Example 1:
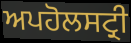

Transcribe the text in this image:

ਅਪਹੋਲਸਟ੍ਰੀ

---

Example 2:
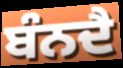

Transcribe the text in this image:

ਬੰਨਦੈ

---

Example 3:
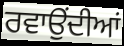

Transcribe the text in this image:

ਰਵਾਉਂਦੀਆਂ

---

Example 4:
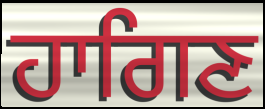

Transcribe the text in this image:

ਹਾਗਿਣ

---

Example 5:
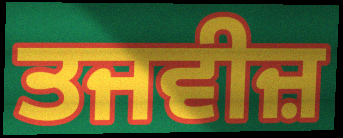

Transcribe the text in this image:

ਤਜਵੀਜ਼